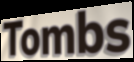
Tombs